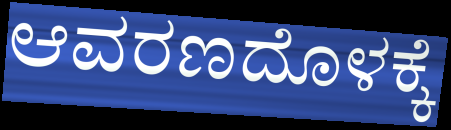
ಆವರಣದೊಳಕ್ಕೆ